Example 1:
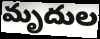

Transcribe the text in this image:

మృదుల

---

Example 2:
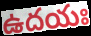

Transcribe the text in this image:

ఉదయః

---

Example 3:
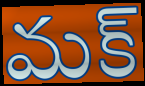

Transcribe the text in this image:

మక్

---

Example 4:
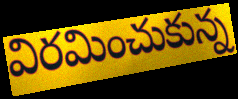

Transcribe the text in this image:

విరమించుకున్న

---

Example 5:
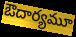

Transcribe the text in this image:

ఔదార్యమూ